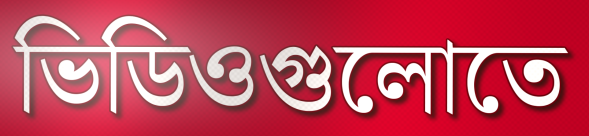
ভিডিওগুলোতে